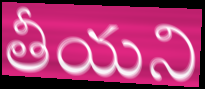
తీయని